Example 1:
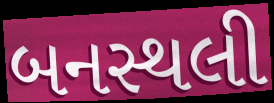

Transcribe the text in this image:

બનસ્થલી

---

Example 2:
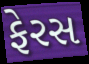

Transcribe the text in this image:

ફેરસ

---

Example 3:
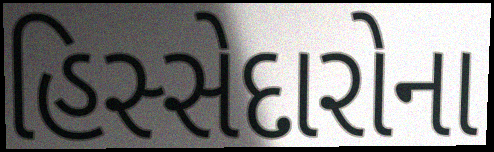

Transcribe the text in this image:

હિસ્સેદારોના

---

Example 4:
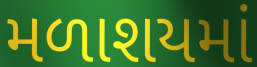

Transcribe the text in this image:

મળાશયમાં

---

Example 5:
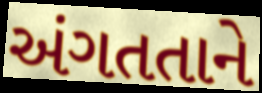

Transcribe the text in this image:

અંગતતાને